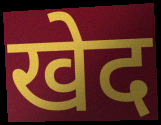
खेद